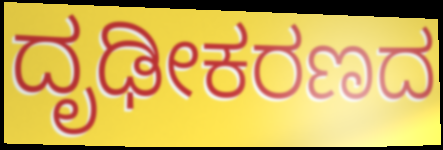
ದೃಢೀಕರಣದ